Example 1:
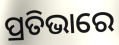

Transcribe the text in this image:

ପ୍ରତିଭାରେ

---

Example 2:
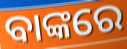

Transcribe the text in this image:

ବାଙ୍କରେ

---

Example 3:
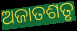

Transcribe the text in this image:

ଅଜାତଶତୃ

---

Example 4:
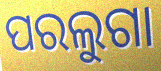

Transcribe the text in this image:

ପରଲୁଗା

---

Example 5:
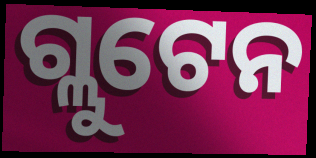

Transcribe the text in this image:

ଗ୍ଲୁଟେନ